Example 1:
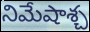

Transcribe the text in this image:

నిమేషాశ్చ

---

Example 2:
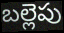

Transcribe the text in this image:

బల్లెపు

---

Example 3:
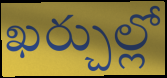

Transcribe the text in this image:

ఖర్చుల్లో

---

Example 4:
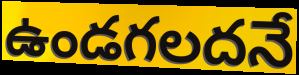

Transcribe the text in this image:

ఉండగలదనే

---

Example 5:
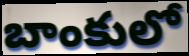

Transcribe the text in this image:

బాంకులో